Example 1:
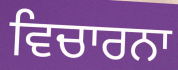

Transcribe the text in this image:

ਵਿਚਾਰਨਾ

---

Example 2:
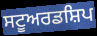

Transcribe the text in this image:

ਸਟੂਅਰਡਸ਼ਿਪ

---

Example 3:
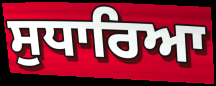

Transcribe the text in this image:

ਸੁਧਾਰਿਆ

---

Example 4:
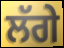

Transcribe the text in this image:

ਲੱਗੇ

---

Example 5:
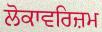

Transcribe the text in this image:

ਲੋਕਾਵਰਿਜ਼ਮ